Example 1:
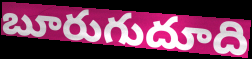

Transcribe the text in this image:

బూరుగుదూది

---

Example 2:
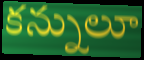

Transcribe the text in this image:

కన్నులూ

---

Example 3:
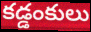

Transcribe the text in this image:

కడ్డంకులు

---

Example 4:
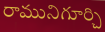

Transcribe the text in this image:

రామునిగూర్చి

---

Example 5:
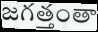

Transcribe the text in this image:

జగత్తంతా